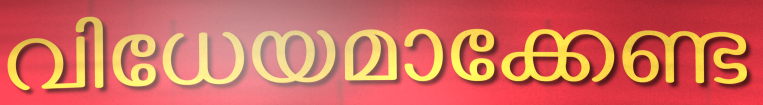
വിധേയമാക്കേണ്ട